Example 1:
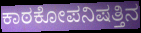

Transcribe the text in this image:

ಕಾಠಕೋಪನಿಷತ್ತಿನ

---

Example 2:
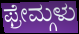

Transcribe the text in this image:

ಫ್ರೇಮ್ಗಳು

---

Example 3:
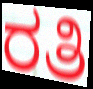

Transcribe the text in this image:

ರತಿ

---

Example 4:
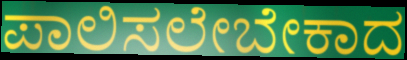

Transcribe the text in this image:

ಪಾಲಿಸಲೇಬೇಕಾದ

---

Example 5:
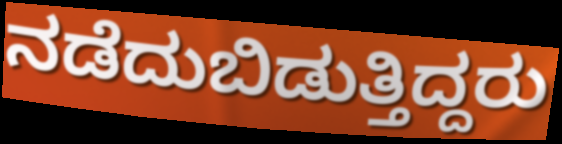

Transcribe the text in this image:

ನಡೆದುಬಿಡುತ್ತಿದ್ದರು